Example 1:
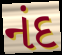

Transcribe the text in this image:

નંદ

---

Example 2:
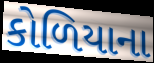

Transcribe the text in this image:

કોળિયાના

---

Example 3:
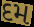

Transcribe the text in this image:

દમ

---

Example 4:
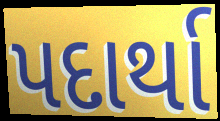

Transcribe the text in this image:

પદાર્થા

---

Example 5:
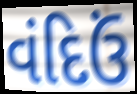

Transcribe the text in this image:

વંદિઉં